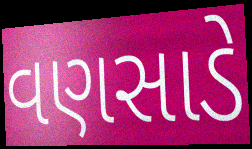
વણસાડે